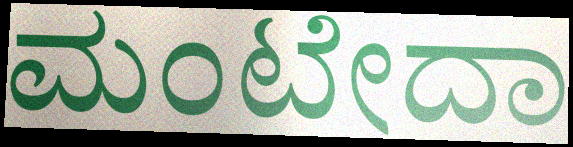
ಮಂಟೇದಾ